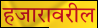
हजारावरील